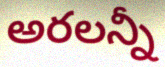
అరలన్నీ